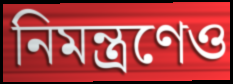
নিমন্ত্রণেও